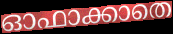
ഓഫാക്കാതെ